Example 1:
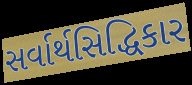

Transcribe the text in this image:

સર્વાર્થસિદ્ધિકાર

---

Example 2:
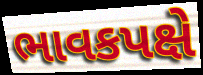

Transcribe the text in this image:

ભાવકપક્ષે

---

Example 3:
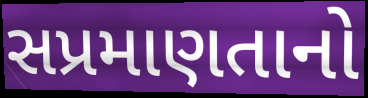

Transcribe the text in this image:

સપ્રમાણતાનો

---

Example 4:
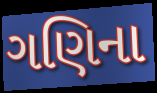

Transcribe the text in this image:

ગણિના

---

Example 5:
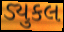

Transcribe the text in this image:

ડ્યુકલ